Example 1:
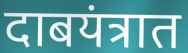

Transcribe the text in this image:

दाबयंत्रात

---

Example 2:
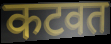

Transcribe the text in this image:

कटवत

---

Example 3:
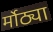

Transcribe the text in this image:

र्मोठ्या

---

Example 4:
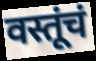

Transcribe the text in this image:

वस्तूंचं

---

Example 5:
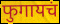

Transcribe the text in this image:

फुगायचं